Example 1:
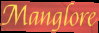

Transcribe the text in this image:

Manglore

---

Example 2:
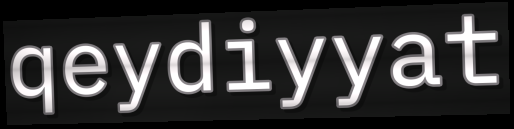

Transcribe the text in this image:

qeydiyyat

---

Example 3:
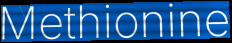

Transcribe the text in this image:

Methionine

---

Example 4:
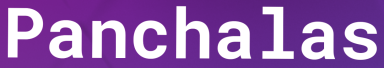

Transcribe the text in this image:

Panchalas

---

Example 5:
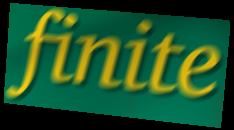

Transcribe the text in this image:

finite